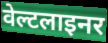
वेल्टलाइनर